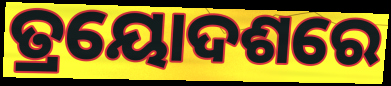
ତ୍ରୟୋଦଶରେ